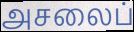
அசலைப்